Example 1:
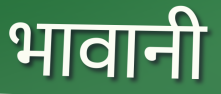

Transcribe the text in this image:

भावानी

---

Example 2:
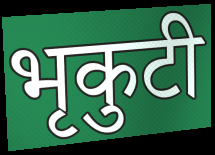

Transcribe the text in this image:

भृकुटी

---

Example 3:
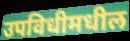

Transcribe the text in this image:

उपविधीमधील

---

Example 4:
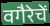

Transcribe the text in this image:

वगैरेचें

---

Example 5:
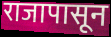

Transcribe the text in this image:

राजापासून